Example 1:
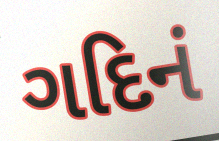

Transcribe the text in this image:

ગદિનં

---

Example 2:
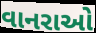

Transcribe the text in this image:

વાનરાઓ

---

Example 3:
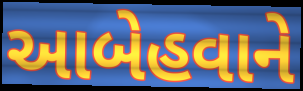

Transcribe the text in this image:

આબેહવાને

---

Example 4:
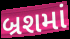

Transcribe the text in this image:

બ્રશમાં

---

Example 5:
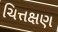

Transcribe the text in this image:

ચિત્તક્ષણ